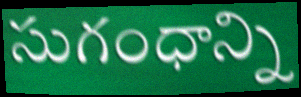
సుగంధాన్ని